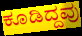
ಕೂಡಿದ್ದವು